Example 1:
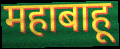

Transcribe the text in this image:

महाबाहू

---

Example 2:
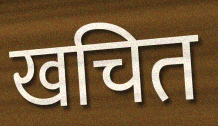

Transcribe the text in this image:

खचित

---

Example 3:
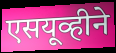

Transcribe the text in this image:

एसयूव्हीने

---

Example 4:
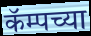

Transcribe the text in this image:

कॅम्पच्या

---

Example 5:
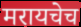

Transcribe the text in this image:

मरायचेच